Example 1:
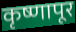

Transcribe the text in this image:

कृष्णापूर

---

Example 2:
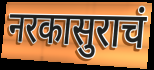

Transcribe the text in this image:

नरकासुराचं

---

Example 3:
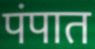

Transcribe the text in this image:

पंपात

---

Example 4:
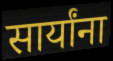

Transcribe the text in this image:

सार्यांना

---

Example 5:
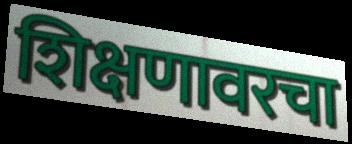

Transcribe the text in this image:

शिक्षणावरचा